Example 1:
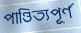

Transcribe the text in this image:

পাণ্ডিত্যপূর্ণ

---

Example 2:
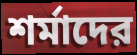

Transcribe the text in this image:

শর্মাদের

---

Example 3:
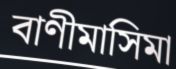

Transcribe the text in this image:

বাণীমাসিমা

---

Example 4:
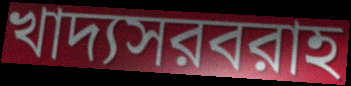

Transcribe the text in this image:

খাদ্যসরবরাহ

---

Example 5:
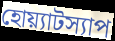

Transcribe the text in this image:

হোয়্যাটস্যাপ